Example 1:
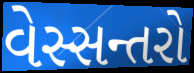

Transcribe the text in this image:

વેસ્સન્તરો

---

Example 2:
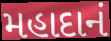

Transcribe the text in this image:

મહાદાનં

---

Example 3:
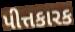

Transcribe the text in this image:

પીત્તકારક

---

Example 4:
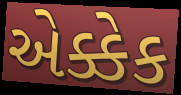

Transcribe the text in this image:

એક્કેક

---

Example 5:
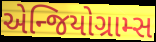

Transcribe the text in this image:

એન્જિયોગ્રામ્સ